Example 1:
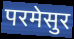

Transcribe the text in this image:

परमेसुर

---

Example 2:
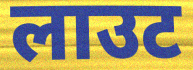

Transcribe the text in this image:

लाउट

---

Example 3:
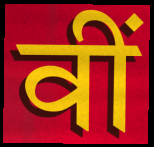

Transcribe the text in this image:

वीं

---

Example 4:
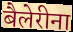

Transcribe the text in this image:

बैलेरीना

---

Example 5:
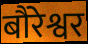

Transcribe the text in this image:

बौरेश्वर